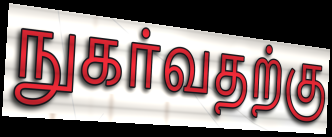
நுகர்வதற்கு